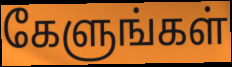
கேளுங்கள்